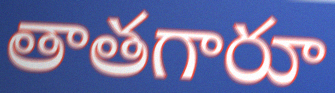
తాతగారూ